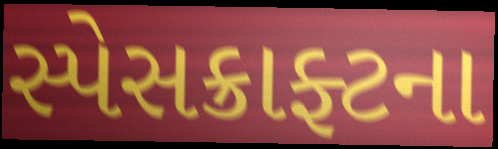
સ્પેસક્રાફ્ટના